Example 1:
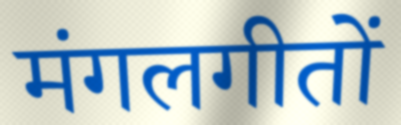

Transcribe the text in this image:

मंगलगीतों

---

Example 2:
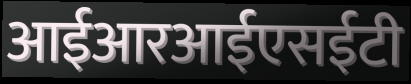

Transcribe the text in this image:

आईआरआईएसईटी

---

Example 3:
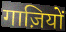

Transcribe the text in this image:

गाज़ियों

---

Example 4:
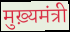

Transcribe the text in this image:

मुख़्यमंत्री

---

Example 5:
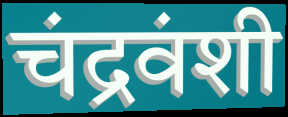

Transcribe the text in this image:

चंद्रवंशी